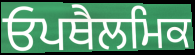
ਓਪਥੈਲਮਿਕ